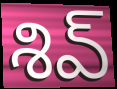
శివ్